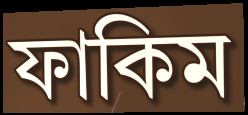
ফাকিম